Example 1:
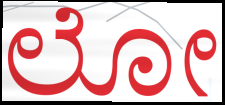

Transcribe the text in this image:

ಲೋ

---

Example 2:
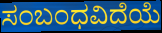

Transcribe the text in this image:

ಸಂಬಂಧವಿದೆಯೆ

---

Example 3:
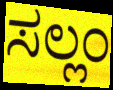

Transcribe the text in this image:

ಸಲ್ಲಂ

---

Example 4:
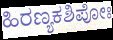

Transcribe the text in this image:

ಹಿರಣ್ಯಕಶಿಪೋಃ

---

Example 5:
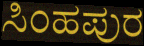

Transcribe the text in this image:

ಸಿಂಹಪುರ